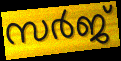
സർജ്